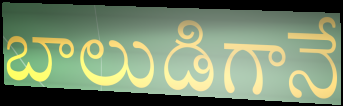
బాలుడిగానే